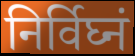
निर्विघ्नं